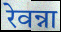
रेवन्ना